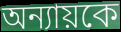
অন্যায়কে